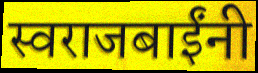
स्वराजबाईंनी